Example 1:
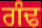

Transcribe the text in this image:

ਗੰਢ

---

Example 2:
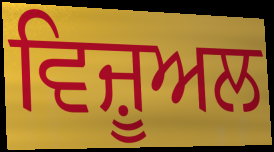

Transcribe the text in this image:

ਵਿਜ਼ੂਅਲ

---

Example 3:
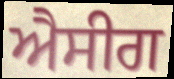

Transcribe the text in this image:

ਐਸੀਗ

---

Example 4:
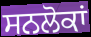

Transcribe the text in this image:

ਸਨਲੋਕਾਂ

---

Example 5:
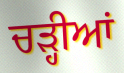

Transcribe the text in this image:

ਚੜ੍ਹੀਆਂ